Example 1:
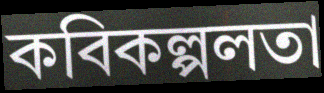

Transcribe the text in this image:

কবিকল্পলতা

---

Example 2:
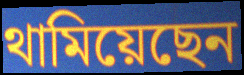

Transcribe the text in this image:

থামিয়েছেন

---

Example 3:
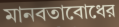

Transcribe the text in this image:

মানবতাবোধের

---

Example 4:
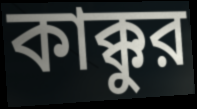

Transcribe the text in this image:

কাক্কুর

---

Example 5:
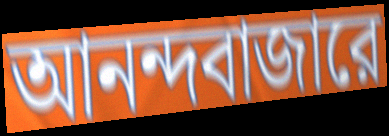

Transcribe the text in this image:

আনন্দবাজারে